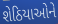
શેઠિયાઓને